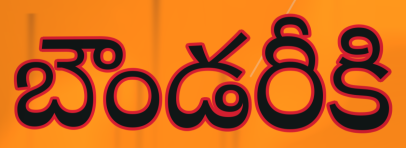
బౌండరీకి